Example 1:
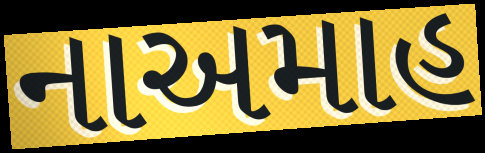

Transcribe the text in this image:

નાઅમાહ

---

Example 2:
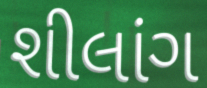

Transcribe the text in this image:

શીલાંગ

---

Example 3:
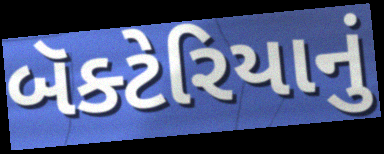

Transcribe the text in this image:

બૅક્ટેરિયાનું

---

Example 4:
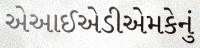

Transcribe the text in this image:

એઆઈએડીએમકેનું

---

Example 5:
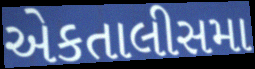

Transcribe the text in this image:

એકતાલીસમા